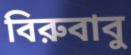
বিরুবাবু